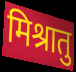
मिश्रातु